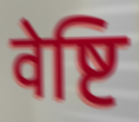
वेष्टि